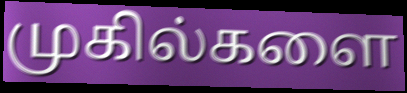
முகில்களை